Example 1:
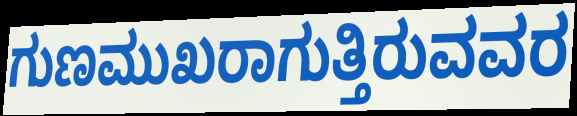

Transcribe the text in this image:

ಗುಣಮುಖರಾಗುತ್ತಿರುವವರ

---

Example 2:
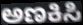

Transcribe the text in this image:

ಅಣಕಿಸಿ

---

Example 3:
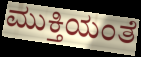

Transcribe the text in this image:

ಮುಕ್ತಿಯಂತೆ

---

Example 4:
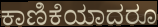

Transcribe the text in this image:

ಕಾಣಿಕೆಯಾದರೂ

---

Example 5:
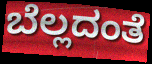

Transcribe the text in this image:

ಬೆಲ್ಲದಂತೆ